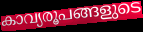
കാവ്യരൂപങ്ങളുടെ